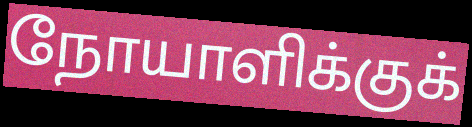
நோயாளிக்குக்